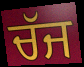
ਚੱਜ